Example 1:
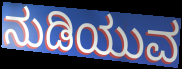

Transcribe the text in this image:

ನುಡಿಯುವ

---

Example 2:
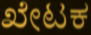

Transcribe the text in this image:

ಖೇಟಕ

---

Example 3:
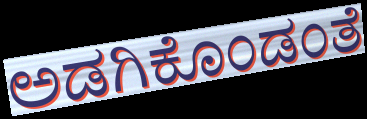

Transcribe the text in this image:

ಅಡಗಿಕೊಂಡಂತೆ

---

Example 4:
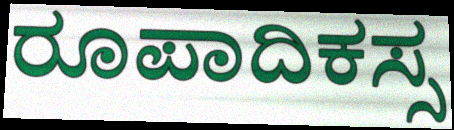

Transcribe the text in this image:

ರೂಪಾದಿಕಸ್ಸ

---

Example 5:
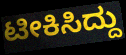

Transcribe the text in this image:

ಟೀಕಿಸಿದ್ದು